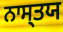
ਨਾਸ੍ਤਯ